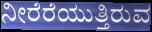
ನೀರೆರೆಯುತ್ತಿರುವ